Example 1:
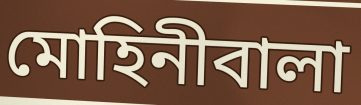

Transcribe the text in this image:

মোহিনীবালা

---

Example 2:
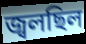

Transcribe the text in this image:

জ্বলছিল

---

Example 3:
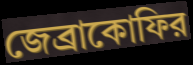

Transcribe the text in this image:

জেব্রাকোফির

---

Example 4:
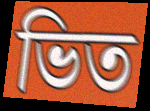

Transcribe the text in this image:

ভিত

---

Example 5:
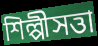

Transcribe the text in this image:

শিল্পীসত্তা